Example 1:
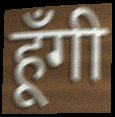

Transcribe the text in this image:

हूँगी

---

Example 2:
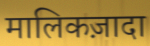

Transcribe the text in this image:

मालिकज़ादा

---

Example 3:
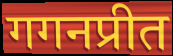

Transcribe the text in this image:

गगनप्रीत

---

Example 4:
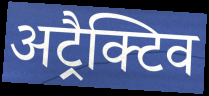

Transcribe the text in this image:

अट्रैक्टिव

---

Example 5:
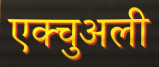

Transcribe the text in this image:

एक्चुअली